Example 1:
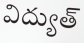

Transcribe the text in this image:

విద్యుత్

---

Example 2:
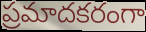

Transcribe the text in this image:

ప్రమాదకరంగా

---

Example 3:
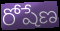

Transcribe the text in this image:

రోషేణ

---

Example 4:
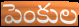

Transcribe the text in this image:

పెంకుల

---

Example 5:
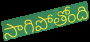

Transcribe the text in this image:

సాగిపోతోంది